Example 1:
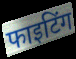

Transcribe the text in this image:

फाइटिंग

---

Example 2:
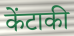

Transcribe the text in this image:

केंटाकी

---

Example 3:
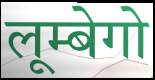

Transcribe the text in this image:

लूम्बेगो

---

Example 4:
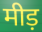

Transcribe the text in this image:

मीड़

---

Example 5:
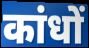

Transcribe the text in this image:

कांधों